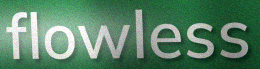
flowless